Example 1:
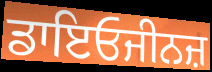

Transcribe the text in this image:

ਡਾਇਓਜੀਨਜ਼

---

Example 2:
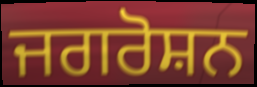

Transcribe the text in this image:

ਜਗਰੋਸ਼ਨ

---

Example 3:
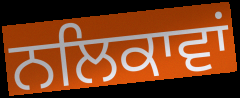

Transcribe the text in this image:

ਨਲਿਕਾਵਾਂ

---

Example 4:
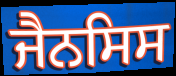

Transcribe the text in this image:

ਜੈਨਸਿਸ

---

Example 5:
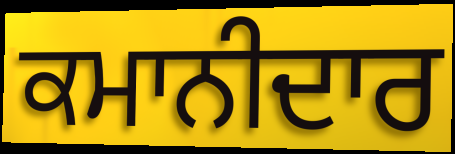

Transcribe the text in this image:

ਕਮਾਨੀਦਾਰ